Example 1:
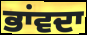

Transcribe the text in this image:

ਭਾਂਵਦਾ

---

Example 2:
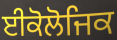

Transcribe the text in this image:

ਈਕੋਲੋਜਿਕ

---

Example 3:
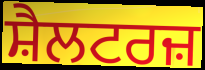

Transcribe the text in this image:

ਸ਼ੈਲਟਰਜ਼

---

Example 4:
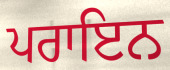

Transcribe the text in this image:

ਪਰਾਇਨ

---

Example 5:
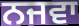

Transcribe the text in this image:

ਨਜਵਾ